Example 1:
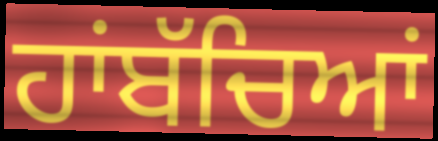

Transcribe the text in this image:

ਹਾਂਬੱਚਿਆਂ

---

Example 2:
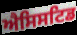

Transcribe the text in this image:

ਐਸਿਸਟਿਡ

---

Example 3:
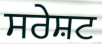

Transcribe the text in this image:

ਸਰੇਸ਼ਟ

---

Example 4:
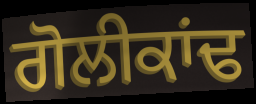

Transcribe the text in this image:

ਗੋਲੀਕਾਂਢ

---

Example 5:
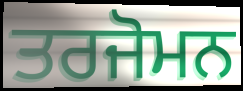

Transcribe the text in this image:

ਤਰਜੋਮਨ